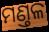
ମଣ୍ତଳ